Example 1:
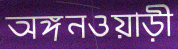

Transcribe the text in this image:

অঙ্গনওয়াড়ী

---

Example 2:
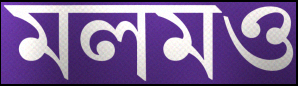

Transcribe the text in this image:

মলমও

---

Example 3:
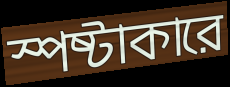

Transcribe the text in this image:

স্পষ্টাকারে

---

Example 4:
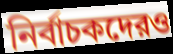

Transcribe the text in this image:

নির্বাচকদেরও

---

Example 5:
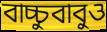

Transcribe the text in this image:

বাচ্চুবাবুও